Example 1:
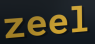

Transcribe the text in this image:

zeel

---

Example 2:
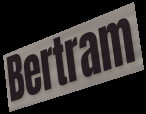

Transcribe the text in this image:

Bertram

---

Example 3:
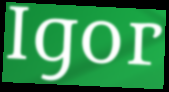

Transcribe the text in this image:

Igor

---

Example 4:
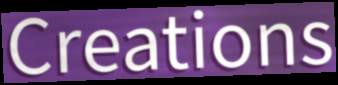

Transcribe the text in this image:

Creations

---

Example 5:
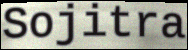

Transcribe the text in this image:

Sojitra